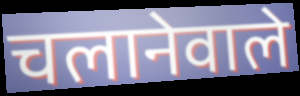
चलानेवाले